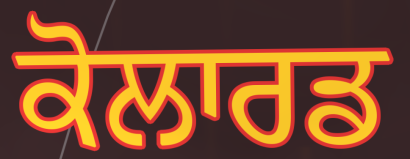
ਕੋਲਾਰਡ